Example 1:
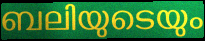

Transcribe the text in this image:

ബലിയുടെയും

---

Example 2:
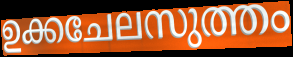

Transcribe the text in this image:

ഉക്കചേലസുത്തം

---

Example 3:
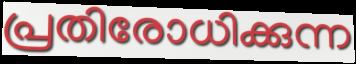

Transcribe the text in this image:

പ്രതിരോധിക്കുന്ന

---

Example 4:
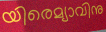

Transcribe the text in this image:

യിരെമ്യാവിനു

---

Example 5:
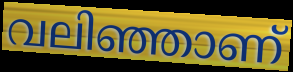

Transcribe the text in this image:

വലിഞ്ഞാണ്